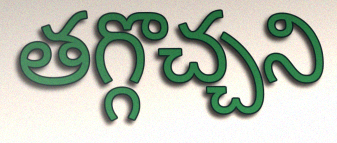
తగ్గొచ్చని